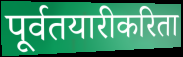
पूर्वतयारीकरिता